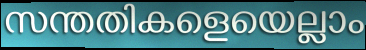
സന്തതികളെയെല്ലാം